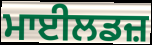
ਮਾਈਲਡਜ਼